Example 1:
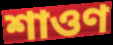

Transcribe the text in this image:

শাওণ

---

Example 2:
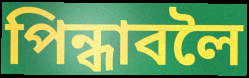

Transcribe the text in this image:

পিন্ধাবলৈ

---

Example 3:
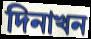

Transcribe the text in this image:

দিনাখন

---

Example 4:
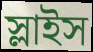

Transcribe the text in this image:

স্লাইস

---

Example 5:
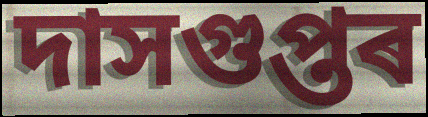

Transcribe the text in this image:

দাসগুপ্তৰ